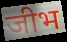
जीभ